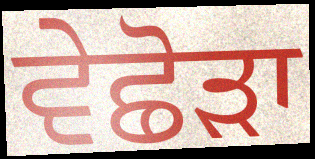
ਵੇਛੋੜਾ